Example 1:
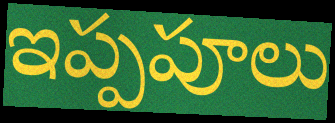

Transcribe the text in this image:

ఇప్పపూలు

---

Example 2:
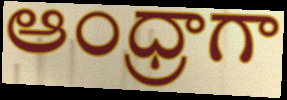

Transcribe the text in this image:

ఆంధ్రాగా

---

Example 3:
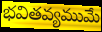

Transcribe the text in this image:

భవితవ్యముమే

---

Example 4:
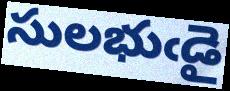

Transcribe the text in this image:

సులభుఁడై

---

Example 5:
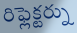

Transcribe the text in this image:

రిఫ్లెక్టర్ను